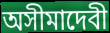
অসীমাদেবী